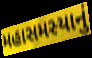
મહાસમસ્યાનું